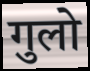
गुलो